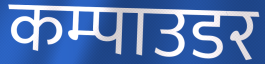
कम्पाउडर